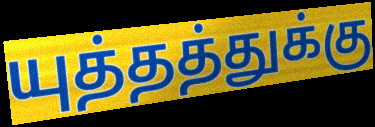
யுத்தத்துக்கு